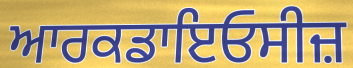
ਆਰਕਡਾਇਓਸੀਜ਼